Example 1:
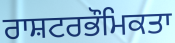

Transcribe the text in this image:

ਰਾਸ਼ਟਰਭੌਮਿਕਤਾ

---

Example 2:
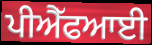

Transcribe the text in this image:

ਪੀਐੱਫਆਈ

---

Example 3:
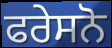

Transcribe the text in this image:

ਫਰੇਸਨੋ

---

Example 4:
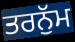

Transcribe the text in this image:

ਤਰਨੁੱਮ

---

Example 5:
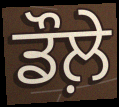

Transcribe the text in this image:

ਡੌਲ਼ੇ